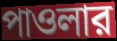
পাওলার